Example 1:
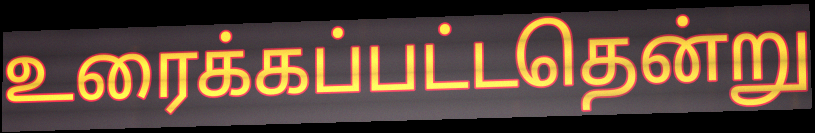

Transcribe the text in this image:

உரைக்கப்பட்டதென்று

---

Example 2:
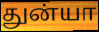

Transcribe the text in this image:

துன்யா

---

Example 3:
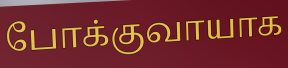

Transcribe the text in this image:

போக்குவாயாக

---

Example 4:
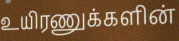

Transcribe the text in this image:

உயிரணுக்களின்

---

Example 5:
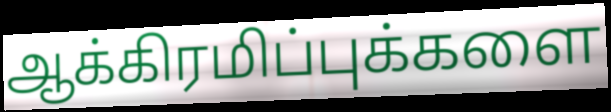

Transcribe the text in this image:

ஆக்கிரமிப்புக்களை